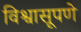
विश्वासूपणे